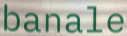
banale